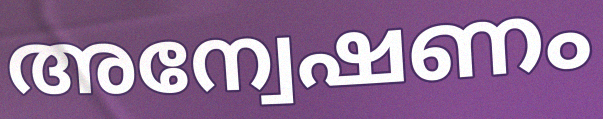
അന്വേഷണം